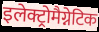
इलेक्ट्रोमैग्नेटिक